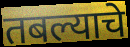
तबल्याचे